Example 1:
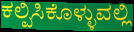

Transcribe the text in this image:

ಕಲ್ಪಿಸಿಕೊಳ್ಳುವಲ್ಲಿ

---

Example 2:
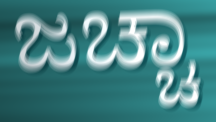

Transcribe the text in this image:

ಜಚ್ಚಾ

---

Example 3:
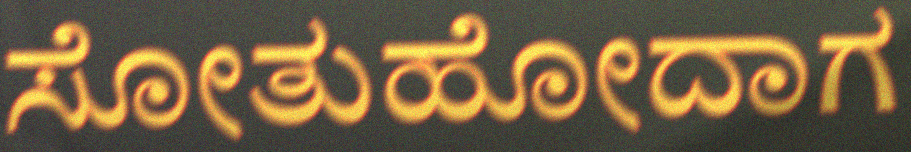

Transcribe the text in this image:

ಸೋತುಹೋದಾಗ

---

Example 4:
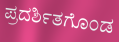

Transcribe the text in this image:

ಪ್ರದರ್ಶಿತಗೊಂಡ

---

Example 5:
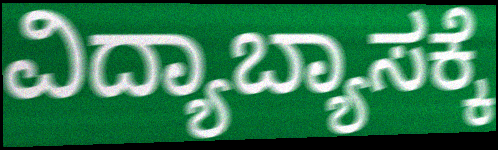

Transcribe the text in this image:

ವಿದ್ಯಾಬ್ಯಾಸಕ್ಕೆ